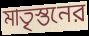
মাতৃস্তনের